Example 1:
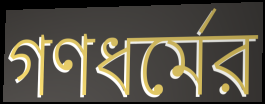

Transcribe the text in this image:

গণধর্মের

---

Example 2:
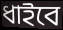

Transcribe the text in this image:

ধাইবে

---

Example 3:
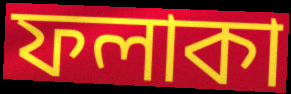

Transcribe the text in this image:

ফলাকা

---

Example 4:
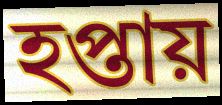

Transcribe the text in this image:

হপ্তায়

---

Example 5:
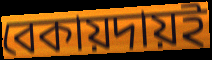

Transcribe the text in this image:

বেকায়দায়ই